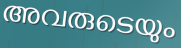
അവരുടെയും